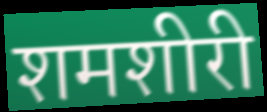
शमशीरी